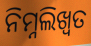
ନିମ୍ନଲିଖ୍ବତ